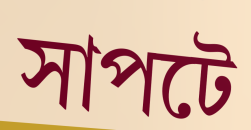
সাপটে